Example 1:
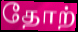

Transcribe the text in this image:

தோற்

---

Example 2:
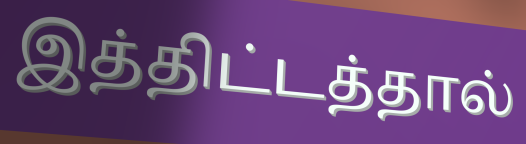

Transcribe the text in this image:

இத்திட்டத்தால்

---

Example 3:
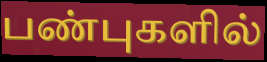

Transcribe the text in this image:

பண்புகளில்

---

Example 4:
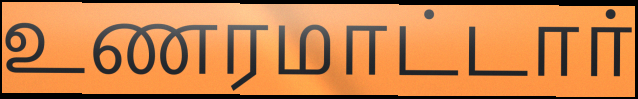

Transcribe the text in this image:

உணரமாட்டார்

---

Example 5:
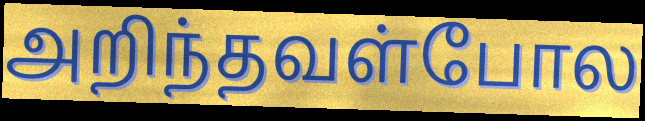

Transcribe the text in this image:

அறிந்தவள்போல